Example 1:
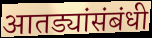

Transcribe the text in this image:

आतड्यांसंबंधी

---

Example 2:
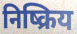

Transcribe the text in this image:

निष्क्रिय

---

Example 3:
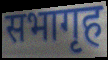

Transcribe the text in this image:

सभागृह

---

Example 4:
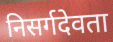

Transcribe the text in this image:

निसर्गदेवता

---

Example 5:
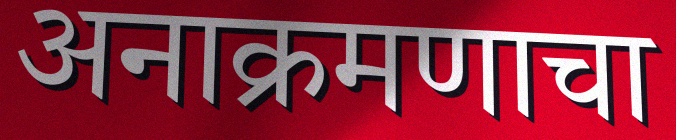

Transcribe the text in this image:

अनाक्रमणाचा